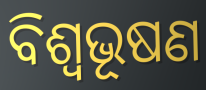
ବିଶ୍ୱଭୂଷଣ